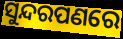
ସୁନ୍ଦରପଣରେ